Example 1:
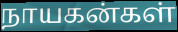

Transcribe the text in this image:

நாயகன்கள்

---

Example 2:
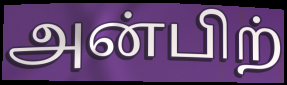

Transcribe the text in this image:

அன்பிற்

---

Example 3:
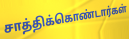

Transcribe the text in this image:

சாத்திக்கொண்டார்கள்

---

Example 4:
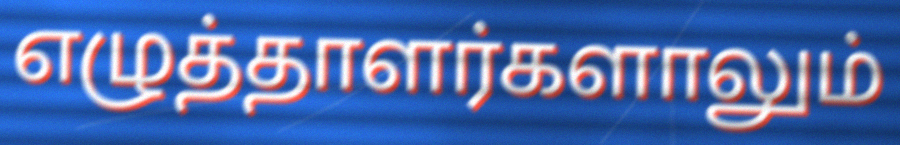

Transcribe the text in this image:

எழுத்தாளர்களாலும்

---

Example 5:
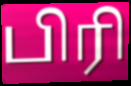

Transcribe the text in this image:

பிரி